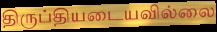
திருப்தியடையவில்லை